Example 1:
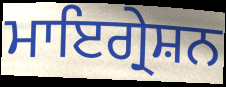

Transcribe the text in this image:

ਮਾਇਗ੍ਰੇਸ਼ਨ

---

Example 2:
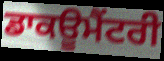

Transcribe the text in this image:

ਡਾਕਊਮੈਂਟਰੀ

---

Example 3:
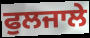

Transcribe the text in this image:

ਫੁਲਜਾਲੇ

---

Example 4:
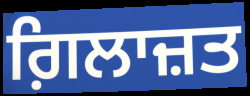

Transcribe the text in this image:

ਗ਼ਿਲਾਜ਼ਤ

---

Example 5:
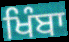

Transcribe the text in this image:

ਖਿੰਬਾ